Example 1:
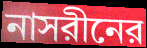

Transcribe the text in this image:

নাসরীনের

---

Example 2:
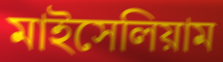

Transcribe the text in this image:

মাইসেলিয়াম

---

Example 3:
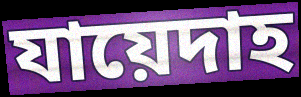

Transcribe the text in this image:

যায়েদাহ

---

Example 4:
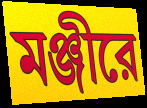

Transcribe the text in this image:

মঞ্জীরে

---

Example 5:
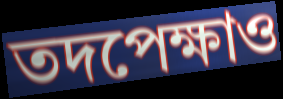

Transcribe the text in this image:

তদপেক্ষাও